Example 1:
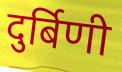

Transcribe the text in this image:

दुर्बिणी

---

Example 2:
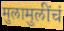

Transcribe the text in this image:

मुलामुलींचं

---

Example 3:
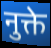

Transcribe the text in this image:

नुक्ते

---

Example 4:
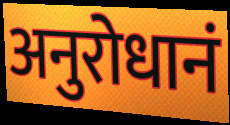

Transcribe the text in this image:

अनुरोधानं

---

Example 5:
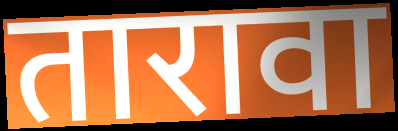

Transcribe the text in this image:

तारावा